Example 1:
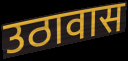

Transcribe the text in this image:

उठावास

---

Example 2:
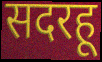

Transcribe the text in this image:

सदरहू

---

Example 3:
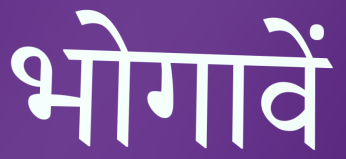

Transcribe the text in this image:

भोगावें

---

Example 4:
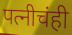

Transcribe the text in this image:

पत्नीचंही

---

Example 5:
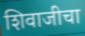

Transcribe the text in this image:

शिवाजीचा